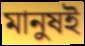
মানুষই